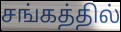
சங்கத்தில்